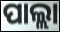
ପାଲ୍ଲା